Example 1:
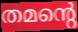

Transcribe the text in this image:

തമന്റെ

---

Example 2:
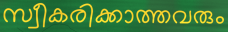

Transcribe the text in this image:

സ്വീകരിക്കാത്തവരും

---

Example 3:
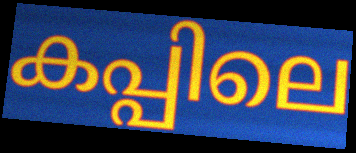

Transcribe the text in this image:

കപ്പിലെ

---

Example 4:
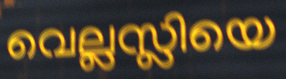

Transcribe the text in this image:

വെല്ലസ്ലിയെ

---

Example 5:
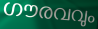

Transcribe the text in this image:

ഗൗരവവും